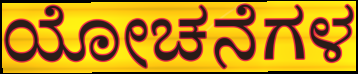
ಯೋಚನೆಗಳ